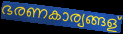
ഭരണകാര്യങ്ങള്